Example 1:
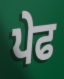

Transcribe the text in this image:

ਪੇਫ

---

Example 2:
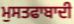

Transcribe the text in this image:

ਮੁਸਤਫਾਬਾਦੀ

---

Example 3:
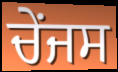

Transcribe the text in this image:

ਚੇਂਜਸ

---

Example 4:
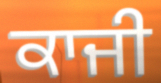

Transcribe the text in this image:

ਕਾਜੀ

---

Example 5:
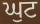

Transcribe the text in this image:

ਘੁਟ